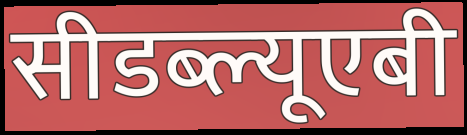
सीडब्ल्यूएबी